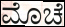
ಮೊಚೆ